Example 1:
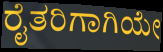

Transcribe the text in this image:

ರೈತರಿಗಾಗಿಯೇ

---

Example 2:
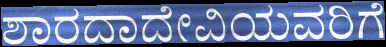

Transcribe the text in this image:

ಶಾರದಾದೇವಿಯವರಿಗೆ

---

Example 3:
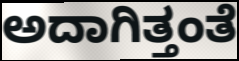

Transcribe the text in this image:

ಅದಾಗಿತ್ತಂತೆ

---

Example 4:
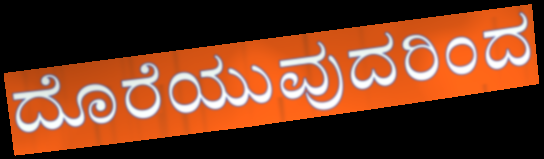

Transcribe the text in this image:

ದೊರೆಯುವುದರಿಂದ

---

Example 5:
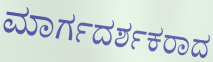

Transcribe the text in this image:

ಮಾರ್ಗದರ್ಶಕರಾದ